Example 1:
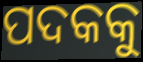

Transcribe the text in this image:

ପଦକକୁ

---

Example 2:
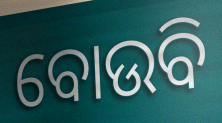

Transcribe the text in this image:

ବୋଉବି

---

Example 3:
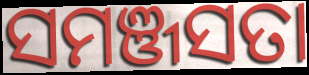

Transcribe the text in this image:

ସମଞ୍ଜସତା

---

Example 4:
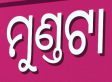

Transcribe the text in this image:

ମୁଣ୍ତଟା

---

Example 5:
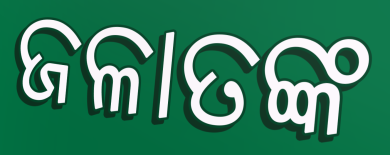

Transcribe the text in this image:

ଜଳାତଙ୍କ